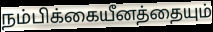
நம்பிக்கையீனத்தையும்